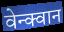
वेन्क्वान